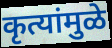
कृत्यांमुळे